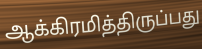
ஆக்கிரமித்திருப்பது